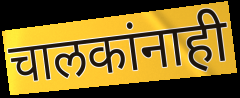
चालकांनाही